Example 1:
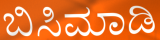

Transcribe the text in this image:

ಬಿಸಿಮಾಡಿ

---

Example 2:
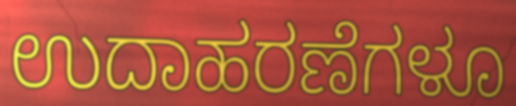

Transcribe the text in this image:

ಉದಾಹರಣೆಗಳೂ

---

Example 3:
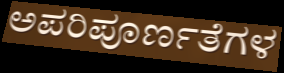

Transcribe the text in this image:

ಅಪರಿಪೂರ್ಣತೆಗಳ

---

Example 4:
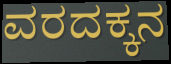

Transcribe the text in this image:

ವರದಕ್ಕನ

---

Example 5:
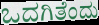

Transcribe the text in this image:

ಒದಗಿತೆಂದು